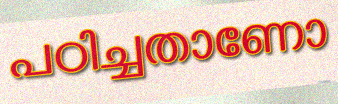
പഠിച്ചതാണോ